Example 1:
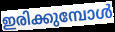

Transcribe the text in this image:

ഇരിക്കുമ്പോൾ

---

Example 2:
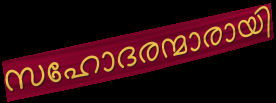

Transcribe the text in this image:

സഹോദരന്മാരായി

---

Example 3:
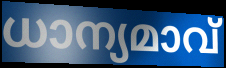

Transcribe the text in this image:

ധാന്യമാവ്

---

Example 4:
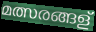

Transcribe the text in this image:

മത്സരങ്ങള്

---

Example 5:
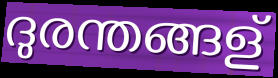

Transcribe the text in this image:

ദുരന്തങ്ങള്